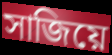
সাজিয়ে